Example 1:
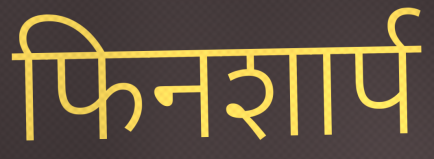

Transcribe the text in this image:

फिनशार्प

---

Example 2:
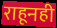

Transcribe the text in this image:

राहूनही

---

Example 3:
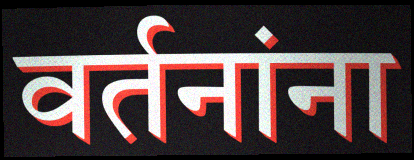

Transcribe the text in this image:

वर्तनांना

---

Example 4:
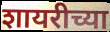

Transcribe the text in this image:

शायरीच्या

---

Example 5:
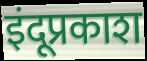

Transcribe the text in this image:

इंदूप्रकाश